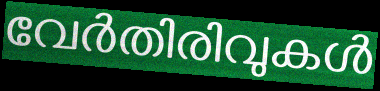
വേർതിരിവുകൾ